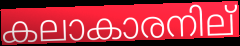
കലാകാരനില്